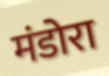
मंडोरा